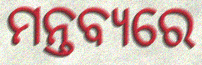
ମନ୍ତବ୍ୟରେ